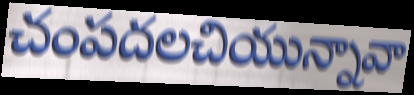
చంపదలచియున్నావా